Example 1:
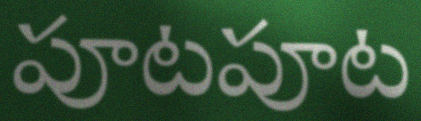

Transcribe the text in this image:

పూటపూట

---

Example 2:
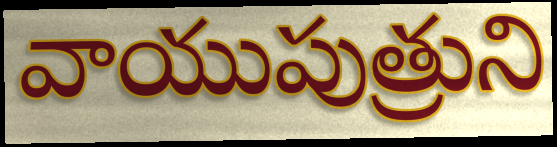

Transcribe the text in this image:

వాయుపుత్రుని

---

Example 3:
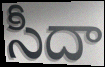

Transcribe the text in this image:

సీదా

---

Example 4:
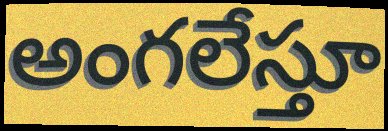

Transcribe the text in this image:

అంగలేస్తూ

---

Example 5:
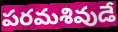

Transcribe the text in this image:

పరమశివుడే